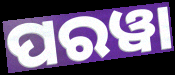
ପରୱା